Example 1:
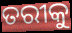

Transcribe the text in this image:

ତରୀକୁ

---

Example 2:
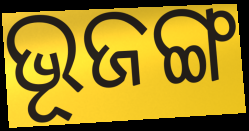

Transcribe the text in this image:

ଭୂଜଙ୍ଗ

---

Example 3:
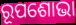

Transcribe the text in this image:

ରୂପଶୋଭା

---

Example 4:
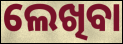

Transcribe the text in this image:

ଲେଖିବା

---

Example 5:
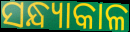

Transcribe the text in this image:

ସନ୍ଧ୍ୟାକାଳ